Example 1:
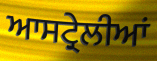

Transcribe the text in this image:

ਆਸਟ੍ਰੇਲੀਆਂ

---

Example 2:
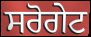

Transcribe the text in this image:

ਸਰੋਗੇਟ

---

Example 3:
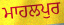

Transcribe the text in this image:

ਮਾਹਲਪੁਰ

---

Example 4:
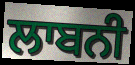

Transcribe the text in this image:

ਲਾਬਨੀ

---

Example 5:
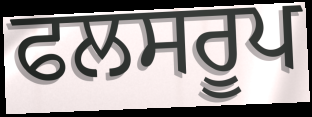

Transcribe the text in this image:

ਫਲਸਰੂਪ